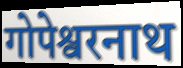
गोपेश्वरनाथ